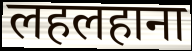
लहलहाना